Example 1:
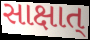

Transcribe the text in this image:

સાક્ષાત્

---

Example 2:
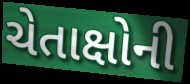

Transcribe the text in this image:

ચેતાક્ષોની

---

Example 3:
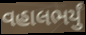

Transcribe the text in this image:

વહાલભર્યું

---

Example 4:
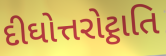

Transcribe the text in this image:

દીઘોત્તરોટ્ઠાતિ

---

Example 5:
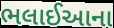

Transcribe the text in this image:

ભલાઈઆના